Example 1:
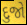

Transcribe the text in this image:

દુજો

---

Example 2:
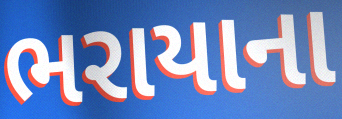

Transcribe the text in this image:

ભરાયાના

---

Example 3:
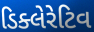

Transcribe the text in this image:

ડિક્લેરેટિવ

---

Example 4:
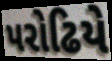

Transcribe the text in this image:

પરોઢિયે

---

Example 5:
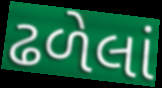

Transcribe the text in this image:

ઢળેલાં